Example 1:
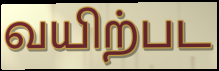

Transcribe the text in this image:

வயிற்பட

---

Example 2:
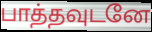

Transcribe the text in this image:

பாத்தவுடனே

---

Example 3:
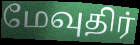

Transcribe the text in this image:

மேவுதிர்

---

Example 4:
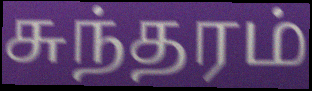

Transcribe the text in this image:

சுந்தரம்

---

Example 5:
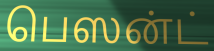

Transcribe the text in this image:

பெஸன்ட்